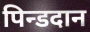
पिन्डदान